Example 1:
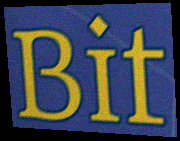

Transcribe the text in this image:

Bit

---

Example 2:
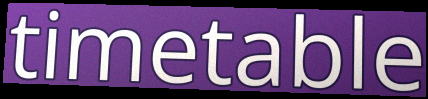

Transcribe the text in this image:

timetable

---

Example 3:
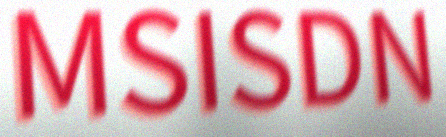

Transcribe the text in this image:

MSISDN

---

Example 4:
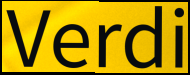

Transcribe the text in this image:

Verdi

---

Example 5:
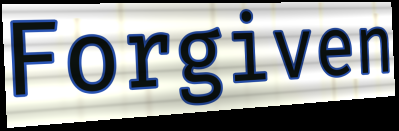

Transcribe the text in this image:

Forgiven